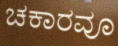
ಚಕಾರವೂ